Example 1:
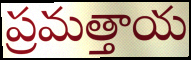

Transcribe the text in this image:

ప్రమత్తాయ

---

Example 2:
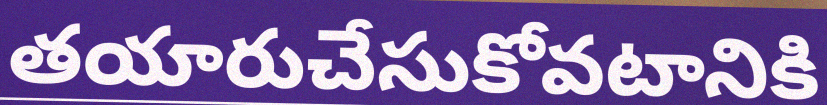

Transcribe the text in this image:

తయారుచేసుకోవటానికి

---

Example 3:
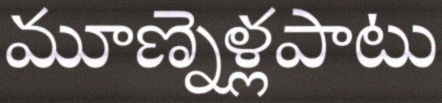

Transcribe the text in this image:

మూణ్నెళ్లపాటు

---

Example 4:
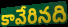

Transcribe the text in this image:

కావేరినది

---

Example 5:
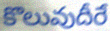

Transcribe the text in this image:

కొలువుదీరే